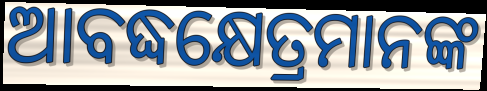
ଆବଦ୍ଧକ୍ଷେତ୍ରମାନଙ୍କ